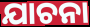
ଯାଚନା